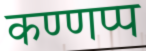
कण्णप्प